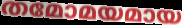
തമോമയമായ